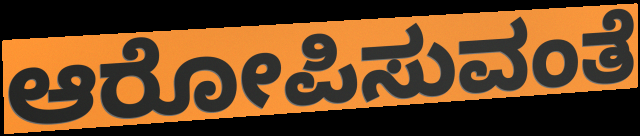
ಆರೋಪಿಸುವಂತೆ